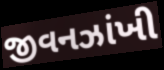
જીવનઝાંખી